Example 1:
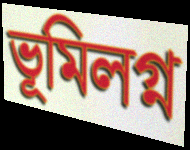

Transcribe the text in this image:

ভূমিলগ্ন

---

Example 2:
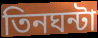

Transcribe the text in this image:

তিনঘন্টা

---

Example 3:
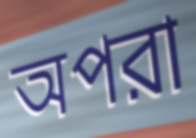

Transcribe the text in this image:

অপরা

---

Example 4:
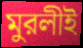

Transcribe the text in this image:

মুরলীই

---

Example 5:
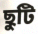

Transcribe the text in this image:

ছুটি